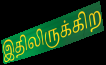
இதிலிருக்கிற